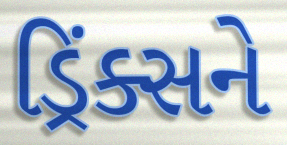
ડ્રિંક્સને